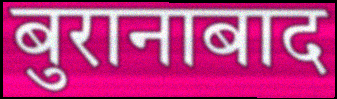
बुरानाबाद